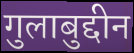
गुलाबुद्दीन